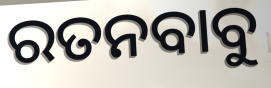
ରତନବାବୁ